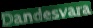
Dandesvara